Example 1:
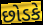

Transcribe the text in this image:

છોડકે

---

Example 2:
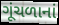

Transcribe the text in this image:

ગૂંચળાનાં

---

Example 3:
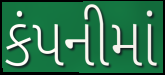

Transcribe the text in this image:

કંપનીમાં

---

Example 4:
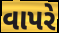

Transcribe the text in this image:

વાપરે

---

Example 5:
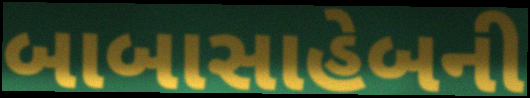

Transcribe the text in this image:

બાબાસાહેબની